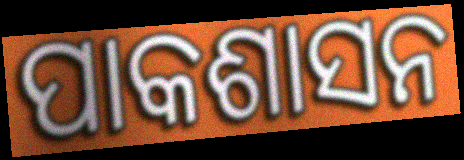
ପାକଶାସନ